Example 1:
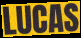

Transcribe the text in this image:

LUCAS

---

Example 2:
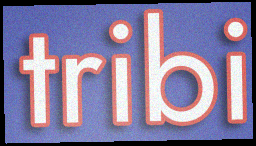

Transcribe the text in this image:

tribi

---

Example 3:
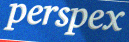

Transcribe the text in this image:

perspex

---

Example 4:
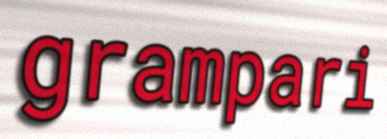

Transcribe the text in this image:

grampari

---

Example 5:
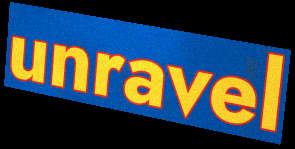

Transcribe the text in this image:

unravel